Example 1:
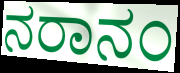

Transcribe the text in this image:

ನರಾನಂ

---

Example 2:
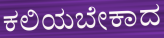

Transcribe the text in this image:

ಕಲಿಯಬೇಕಾದ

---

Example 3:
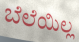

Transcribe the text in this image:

ಬೆಲೆಯಿಲ್ಲ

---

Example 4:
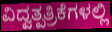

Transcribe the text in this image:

ವಿದ್ವತ್ಪತ್ರಿಕೆಗಳಲ್ಲಿ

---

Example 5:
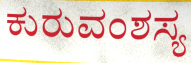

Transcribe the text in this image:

ಕುರುವಂಶಸ್ಯ